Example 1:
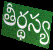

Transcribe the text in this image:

తీర్థస్య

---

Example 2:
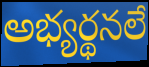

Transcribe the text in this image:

అభ్యర్థనలే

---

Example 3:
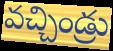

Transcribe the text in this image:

వచ్చిండ్రు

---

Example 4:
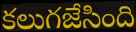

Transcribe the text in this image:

కలుగజేసింది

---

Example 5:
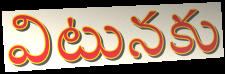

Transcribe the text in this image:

విటునకు